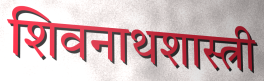
शिवनाथशास्त्री